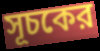
সূচকের